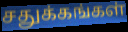
சதுக்கங்கள்